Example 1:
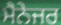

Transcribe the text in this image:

ਮੈਨੇਜਰ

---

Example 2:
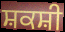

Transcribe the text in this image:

ਸ਼ਕਸ਼ੀ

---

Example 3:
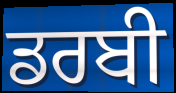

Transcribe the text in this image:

ਡਰਬੀ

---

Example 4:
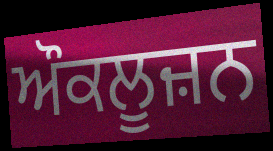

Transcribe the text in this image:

ਔਕਲੂਜ਼ਨ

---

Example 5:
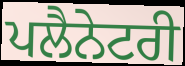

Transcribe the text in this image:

ਪਲੈਨੇਟਰੀ